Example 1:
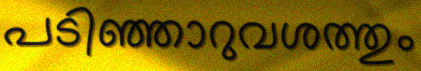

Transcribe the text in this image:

പടിഞ്ഞാറുവശത്തും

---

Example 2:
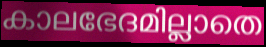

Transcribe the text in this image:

കാലഭേദമില്ലാതെ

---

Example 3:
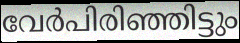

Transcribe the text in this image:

വേർപിരിഞ്ഞിട്ടും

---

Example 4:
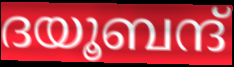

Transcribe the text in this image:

ദയൂബന്ദ്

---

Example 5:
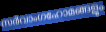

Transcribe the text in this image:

സർവാംഗഹോമങ്ങളും